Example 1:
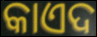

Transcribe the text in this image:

କାଏଦ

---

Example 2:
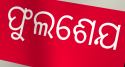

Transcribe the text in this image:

ଫୁଲଶେଯ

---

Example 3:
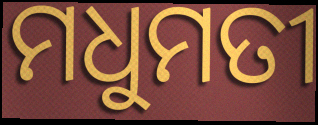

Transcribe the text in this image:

ମଧୁମତୀ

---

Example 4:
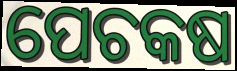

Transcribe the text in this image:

ପେଚକଷ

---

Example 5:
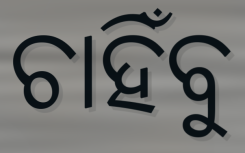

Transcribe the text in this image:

ଚାହିଁବୁ